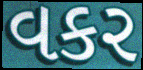
વકર